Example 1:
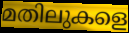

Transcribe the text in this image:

മതിലുകളെ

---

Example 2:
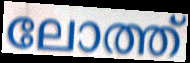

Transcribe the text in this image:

ലോത്ത്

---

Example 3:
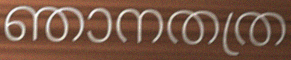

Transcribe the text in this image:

ഞാനതത്ര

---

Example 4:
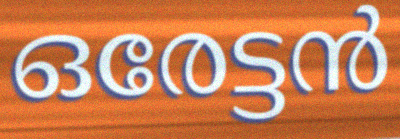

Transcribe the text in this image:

ഒരേട്ടൻ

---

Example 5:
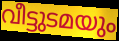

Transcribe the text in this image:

വീട്ടുടമയും